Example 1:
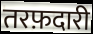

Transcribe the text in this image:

तरफ़दारी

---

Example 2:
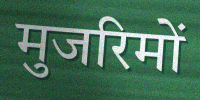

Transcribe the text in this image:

मुजरिमों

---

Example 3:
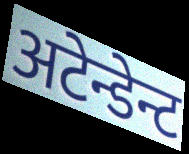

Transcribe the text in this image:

अटेन्डेन्ट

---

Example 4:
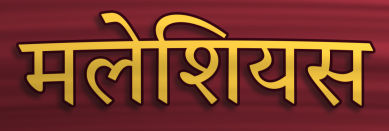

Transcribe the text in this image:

मलेशियस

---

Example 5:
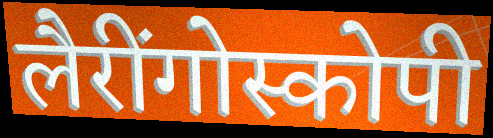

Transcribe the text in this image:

लैरींगोस्कोपी